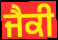
ਜੈਕੀ